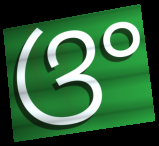
ଓଂ